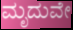
ಮೃದುವೇ